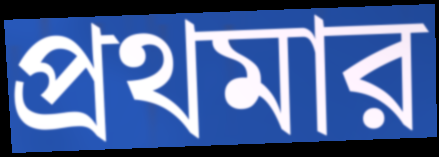
প্রথমার